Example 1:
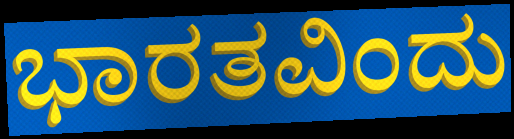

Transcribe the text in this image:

ಭಾರತವಿಂದು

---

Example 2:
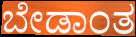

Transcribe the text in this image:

ಬೇಡಾಂತ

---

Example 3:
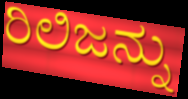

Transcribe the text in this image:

ರಿಲಿಜನ್ನು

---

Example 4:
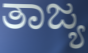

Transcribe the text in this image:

ತಾಜ್ಯ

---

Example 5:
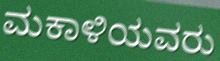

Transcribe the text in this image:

ಮಕಾಳಿಯವರು